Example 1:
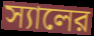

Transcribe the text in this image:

স্যালের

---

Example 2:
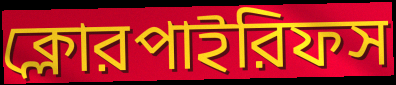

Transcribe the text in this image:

ক্লোরপাইরিফস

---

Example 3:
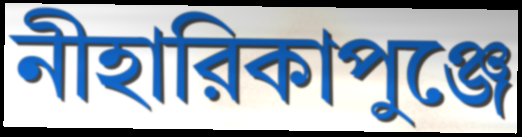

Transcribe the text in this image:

নীহারিকাপুঞ্জে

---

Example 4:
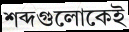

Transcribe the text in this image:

শব্দগুলোকেই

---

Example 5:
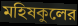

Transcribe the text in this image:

মহিষকুলের